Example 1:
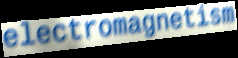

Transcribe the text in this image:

electromagnetism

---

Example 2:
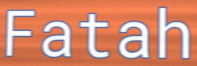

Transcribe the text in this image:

Fatah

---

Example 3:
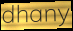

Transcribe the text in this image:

dhany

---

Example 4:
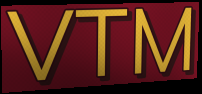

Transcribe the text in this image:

VTM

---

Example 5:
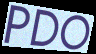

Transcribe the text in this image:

PDO